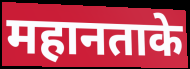
महानताके